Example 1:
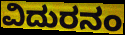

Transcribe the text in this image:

ವಿದುರನಂ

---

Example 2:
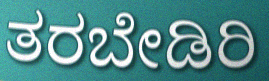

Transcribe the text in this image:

ತರಬೇಡಿರಿ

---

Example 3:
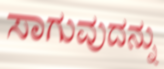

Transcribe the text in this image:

ಸಾಗುವುದನ್ನು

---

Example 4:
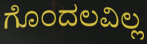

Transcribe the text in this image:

ಗೊಂದಲವಿಲ್ಲ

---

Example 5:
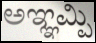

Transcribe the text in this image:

ಅಞ್ಞಮ್ಪಿ